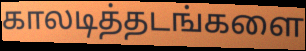
காலடித்தடங்களை